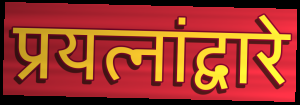
प्रयत्नांद्वारे